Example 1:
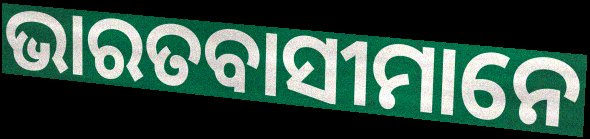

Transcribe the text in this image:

ଭାରତବାସୀମାନେ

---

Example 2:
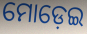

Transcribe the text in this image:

ମୋଡ଼େଇ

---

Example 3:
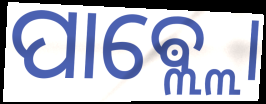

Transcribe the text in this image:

ପାଵ୍ଲ୍ଲୋ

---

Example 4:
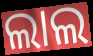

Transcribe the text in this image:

ଲାଲ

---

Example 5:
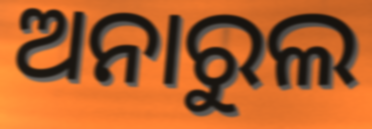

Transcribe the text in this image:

ଅନାରୁଲ